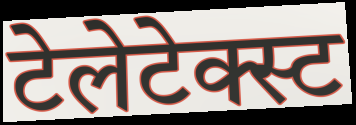
टेलेटेक्स्ट